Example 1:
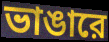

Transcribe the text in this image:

ভাঙারে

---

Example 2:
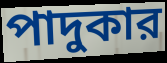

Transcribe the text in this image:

পাদুকার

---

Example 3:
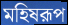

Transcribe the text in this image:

মহিষরূপ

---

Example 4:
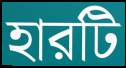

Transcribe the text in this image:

হারটি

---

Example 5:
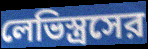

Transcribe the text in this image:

লেভিস্ত্রসের